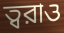
ত্বরাও